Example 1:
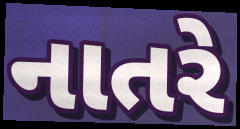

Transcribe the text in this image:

નાતરે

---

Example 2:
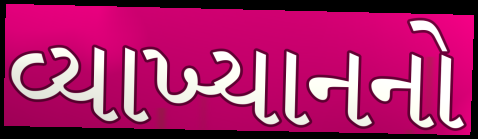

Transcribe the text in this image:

વ્યાખ્યાનનો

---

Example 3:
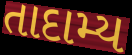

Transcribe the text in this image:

તાદામ્ય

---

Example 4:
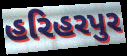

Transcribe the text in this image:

હરિહરપુર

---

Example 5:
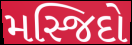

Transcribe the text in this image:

મસ્જિદો